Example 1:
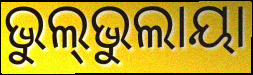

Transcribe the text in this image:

ଭୁଲ୍‌ଭୁଲାୟା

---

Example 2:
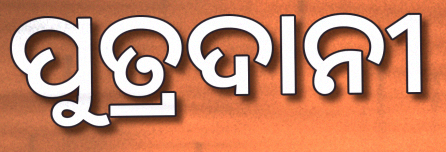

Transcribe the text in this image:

ପୁତ୍ରଦାନୀ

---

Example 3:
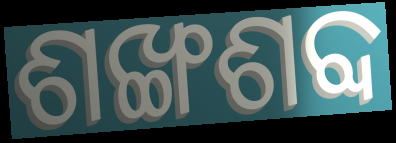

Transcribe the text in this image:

ଶଙ୍ଖଶବ୍ଦ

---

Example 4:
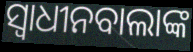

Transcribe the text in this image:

ସ୍ୱାଧୀନବାଲାଙ୍କ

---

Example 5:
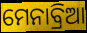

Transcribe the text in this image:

ମେନାବ୍ରିଆ